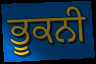
ਭੂਕਨੀ